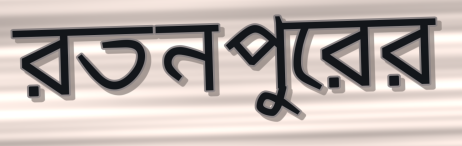
রতনপুরের